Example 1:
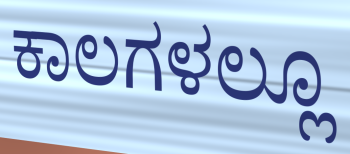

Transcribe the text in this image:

ಕಾಲಗಳಲ್ಲೂ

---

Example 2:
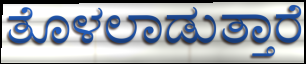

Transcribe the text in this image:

ತೊಳಲಾಡುತ್ತಾರೆ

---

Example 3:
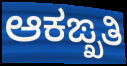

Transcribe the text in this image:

ಆಕಙ್ಖತಿ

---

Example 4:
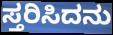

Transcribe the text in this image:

ಸ್ತರಿಸಿದನು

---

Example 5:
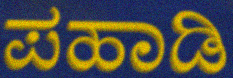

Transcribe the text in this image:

ಪಹಾಡಿ